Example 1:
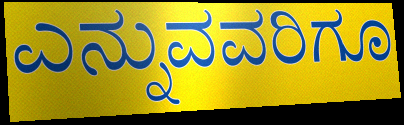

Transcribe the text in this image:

ಎನ್ನುವವರಿಗೂ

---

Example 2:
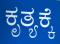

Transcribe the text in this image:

ಕೃತ್ಯಕ್ಕೆ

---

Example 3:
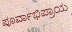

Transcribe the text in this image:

ಪೂರ್ವಾಭಿಪ್ರಾಯ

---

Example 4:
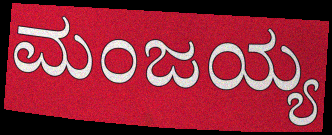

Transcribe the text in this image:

ಮಂಜಯ್ಯ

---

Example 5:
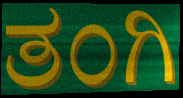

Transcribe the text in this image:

ತಂಗಿ